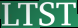
LTST